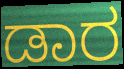
ಡಾರ